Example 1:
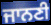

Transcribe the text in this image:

ਜਾਨਣੀ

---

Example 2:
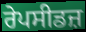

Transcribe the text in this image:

ਰੇਪਸੀਡਜ਼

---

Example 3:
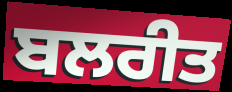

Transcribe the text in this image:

ਬਲਰੀਤ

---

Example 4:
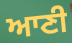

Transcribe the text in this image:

ਆਣੀ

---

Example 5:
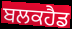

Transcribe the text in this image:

ਬਲਕਹੈਡ